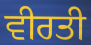
ਵੀਰਤੀ